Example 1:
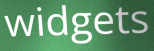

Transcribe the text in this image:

widgets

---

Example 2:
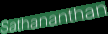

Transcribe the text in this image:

Sathananthan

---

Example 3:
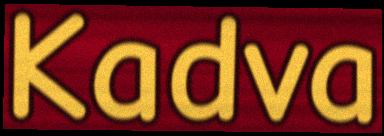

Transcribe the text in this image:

Kadva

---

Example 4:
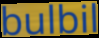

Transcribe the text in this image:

bulbil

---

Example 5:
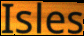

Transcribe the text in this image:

Isles